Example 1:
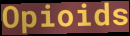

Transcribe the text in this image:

Opioids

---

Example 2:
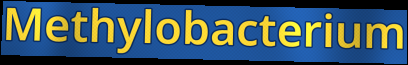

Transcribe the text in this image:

Methylobacterium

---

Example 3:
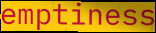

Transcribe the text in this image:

emptiness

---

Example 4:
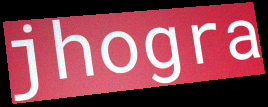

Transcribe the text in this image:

jhogra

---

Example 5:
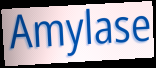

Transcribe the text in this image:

Amylase